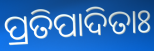
ପ୍ରତିପାଦିତାଃ